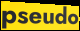
pseudo